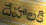
దేహాలకి